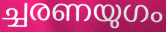
ച്ചരണയുഗം